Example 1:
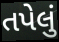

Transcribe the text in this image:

તપેલું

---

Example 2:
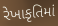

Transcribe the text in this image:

રેખાકૃતિમાં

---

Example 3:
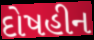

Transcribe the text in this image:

દોષહીન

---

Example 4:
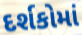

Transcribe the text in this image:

દર્શકોમાં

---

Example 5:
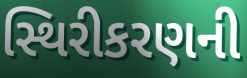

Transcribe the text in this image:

સ્થિરીકરણની